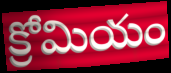
క్రోమియం